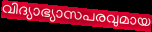
വിദ്യാഭ്യാസപരവുമായ